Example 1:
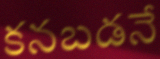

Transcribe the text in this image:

కనబడనే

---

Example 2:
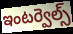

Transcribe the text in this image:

ఇంటర్వెల్స్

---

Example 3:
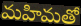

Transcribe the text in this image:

మహిమతో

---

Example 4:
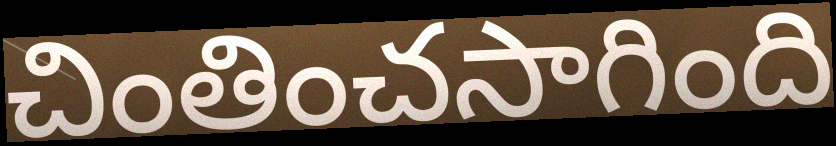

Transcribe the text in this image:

చింతించసాగింది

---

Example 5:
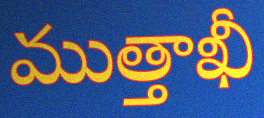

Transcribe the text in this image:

ముత్తాఖీ